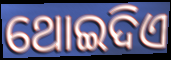
ଥୋଇଦିଏ